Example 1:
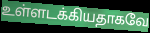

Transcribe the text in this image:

உள்ளடக்கியதாகவே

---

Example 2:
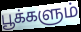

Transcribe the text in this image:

பூக்களும்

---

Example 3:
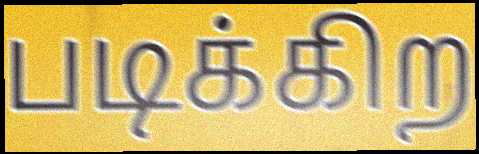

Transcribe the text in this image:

படிக்கிற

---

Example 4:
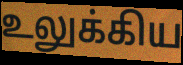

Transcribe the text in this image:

உலுக்கிய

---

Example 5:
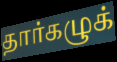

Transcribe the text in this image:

தார்கழுக்